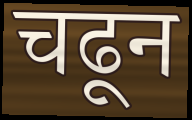
चढून